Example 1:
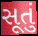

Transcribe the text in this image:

સૂતું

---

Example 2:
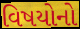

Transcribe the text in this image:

વિષયોનો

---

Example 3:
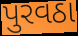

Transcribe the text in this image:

પુરવઠા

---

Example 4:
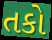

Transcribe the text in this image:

તકો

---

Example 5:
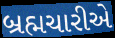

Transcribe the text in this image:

બ્રહ્મચારીએ